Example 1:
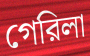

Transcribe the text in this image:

গেরিলা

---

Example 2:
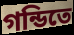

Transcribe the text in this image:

গন্ডিতে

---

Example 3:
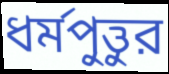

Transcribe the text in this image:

ধর্মপুত্তুর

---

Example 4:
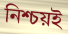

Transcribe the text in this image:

নিশ্চয়ই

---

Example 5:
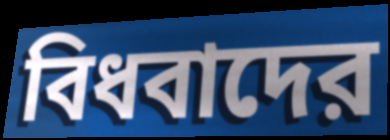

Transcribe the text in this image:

বিধবাদের